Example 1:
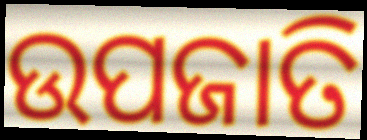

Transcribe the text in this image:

ଉପଜାତି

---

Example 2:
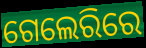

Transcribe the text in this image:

ଗେଲେରିରେ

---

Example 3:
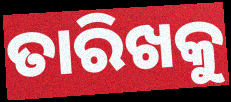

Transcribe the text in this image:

ତାରିଖକୁ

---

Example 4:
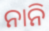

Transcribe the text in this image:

ନାନି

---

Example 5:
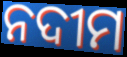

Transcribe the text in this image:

ନଦୀମ